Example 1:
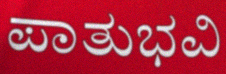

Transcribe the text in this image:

ಪಾತುಭವಿ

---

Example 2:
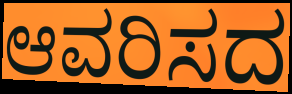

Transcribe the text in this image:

ಆವರಿಸದ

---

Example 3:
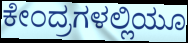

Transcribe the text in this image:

ಕೇಂದ್ರಗಳಲ್ಲಿಯೂ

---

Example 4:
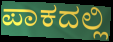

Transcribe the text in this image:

ಪಾಕದಲ್ಲಿ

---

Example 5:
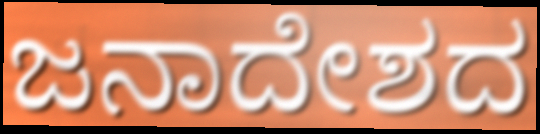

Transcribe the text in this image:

ಜನಾದೇಶದ